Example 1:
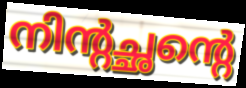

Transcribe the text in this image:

നിന്റച്ഛന്റെ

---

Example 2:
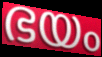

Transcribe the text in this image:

ഭയം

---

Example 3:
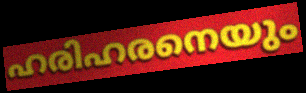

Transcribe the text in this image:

ഹരിഹരനെയും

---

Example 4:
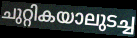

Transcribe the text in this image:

ചുറ്റികയാലുടച്ച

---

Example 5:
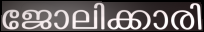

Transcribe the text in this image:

ജോലിക്കാരി